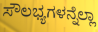
ಸೌಲಭ್ಯಗಳನ್ನೆಲ್ಲಾ